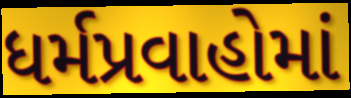
ધર્મપ્રવાહોમાં